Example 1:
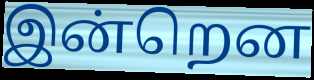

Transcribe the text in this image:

இன்றென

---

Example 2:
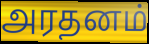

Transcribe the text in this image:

அரதனம்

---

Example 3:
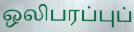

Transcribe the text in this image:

ஒலிபரப்புப்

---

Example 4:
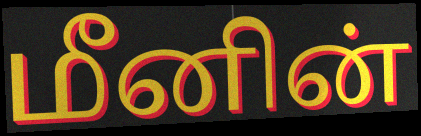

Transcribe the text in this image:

மீனின்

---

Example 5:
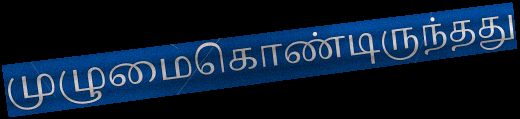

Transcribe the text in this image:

முழுமைகொண்டிருந்தது